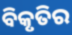
ବିକୃତିର